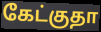
கேட்குதா